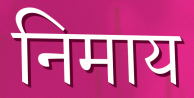
निमाय